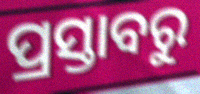
ପ୍ରସ୍ତାବରୁ